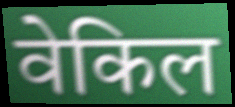
वेकिल